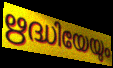
ഋദ്ധിയേയും